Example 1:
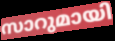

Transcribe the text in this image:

സാറുമായി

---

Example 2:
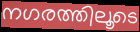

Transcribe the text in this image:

നഗരത്തിലൂടെ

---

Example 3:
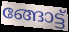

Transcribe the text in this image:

ങ്ങോട്ട്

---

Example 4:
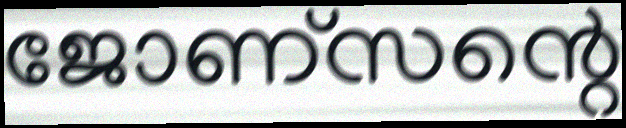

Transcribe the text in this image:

ജോണ്സന്റെ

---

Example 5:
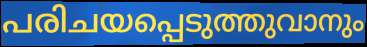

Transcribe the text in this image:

പരിചയപ്പെടുത്തുവാനും